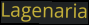
Lagenaria